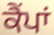
ਕੈੰਪਾਂ